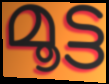
മൂട്ട